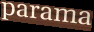
parama